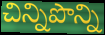
చిన్నిపొన్ని